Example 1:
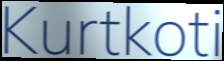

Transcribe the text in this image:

Kurtkoti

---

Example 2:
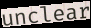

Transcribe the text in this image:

unclear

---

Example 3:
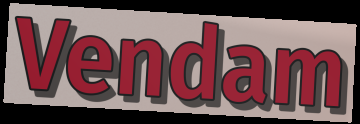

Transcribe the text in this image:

Vendam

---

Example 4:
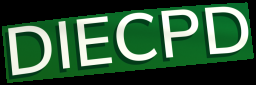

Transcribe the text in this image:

DIECPD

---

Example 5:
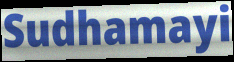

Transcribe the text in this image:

Sudhamayi